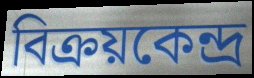
বিক্রয়কেন্দ্র